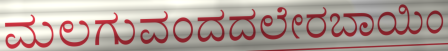
ಮಲಗುವಂದದಲೇರಬಾಯಿಂ